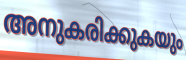
അനുകരിക്കുകയും